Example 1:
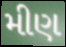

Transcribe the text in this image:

મીણ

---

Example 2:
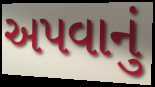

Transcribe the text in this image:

અપવાનું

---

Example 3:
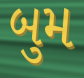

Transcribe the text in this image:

બુમ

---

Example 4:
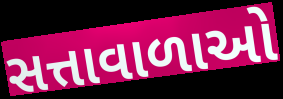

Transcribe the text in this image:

સત્તાવાળાઓ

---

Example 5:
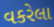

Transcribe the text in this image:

વકરેલા